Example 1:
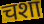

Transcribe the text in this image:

चशा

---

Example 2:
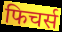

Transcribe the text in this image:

फिचर्स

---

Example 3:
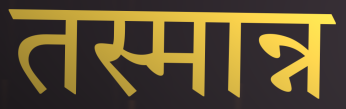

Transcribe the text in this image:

तस्मान्न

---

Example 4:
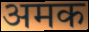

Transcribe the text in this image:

अमक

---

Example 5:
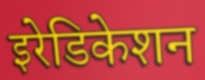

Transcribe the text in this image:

इरेडिकेशन